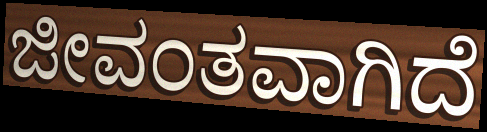
ಜೀವಂತವಾಗಿದೆ